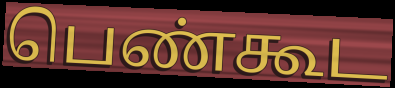
பெண்கூட